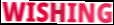
WISHING